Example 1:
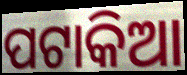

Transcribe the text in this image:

ପଟାକିଆ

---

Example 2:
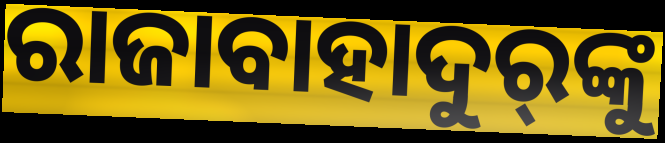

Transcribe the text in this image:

ରାଜାବାହାଦୁର୍‍ଙ୍କୁ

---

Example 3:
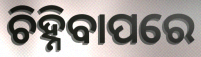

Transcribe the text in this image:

ଚିହ୍ନିବାପରେ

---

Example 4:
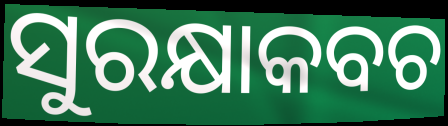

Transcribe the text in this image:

ସୁରକ୍ଷାକବଚ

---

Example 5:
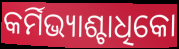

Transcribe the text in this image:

କର୍ମିଭ୍ୟାଶ୍ଚାଧିକୋ